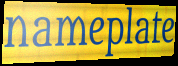
nameplate